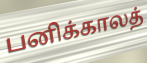
பனிக்காலத்